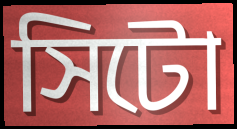
সিটো